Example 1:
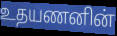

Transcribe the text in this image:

உதயணனின்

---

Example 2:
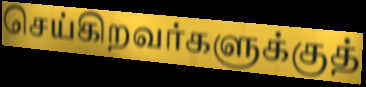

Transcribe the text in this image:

செய்கிறவர்களுக்குத்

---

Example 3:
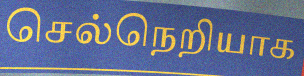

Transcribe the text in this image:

செல்நெறியாக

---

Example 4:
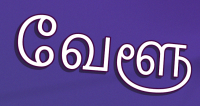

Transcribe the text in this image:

வேளூ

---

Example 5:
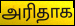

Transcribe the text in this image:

அரிதாக